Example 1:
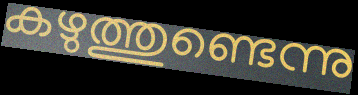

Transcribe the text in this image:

കഴുത്തുണ്ടെന്നു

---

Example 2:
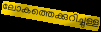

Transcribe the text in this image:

ലോകത്തെക്കുറിച്ചുള്ള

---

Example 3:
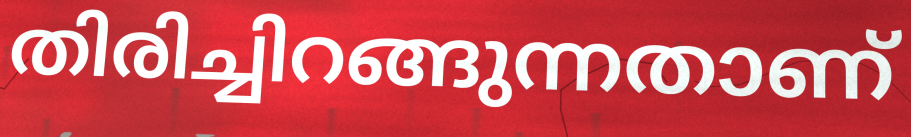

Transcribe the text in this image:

തിരിച്ചിറങ്ങുന്നതാണ്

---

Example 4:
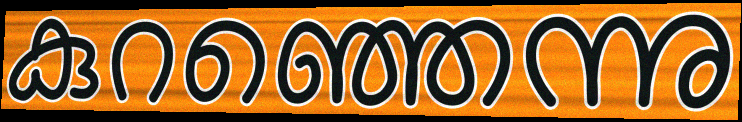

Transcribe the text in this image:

കുറഞ്ഞെന്നു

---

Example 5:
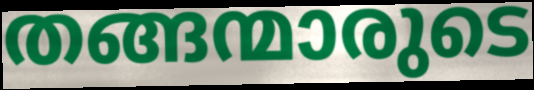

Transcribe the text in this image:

തങ്ങന്മാരുടെ